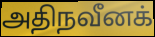
அதிநவீனக்